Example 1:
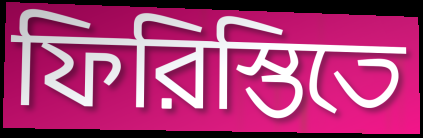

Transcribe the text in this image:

ফিরিস্তিতে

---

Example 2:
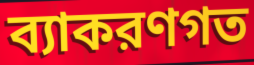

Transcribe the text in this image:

ব্যাকরণগত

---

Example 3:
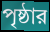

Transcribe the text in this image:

পৃষ্ঠার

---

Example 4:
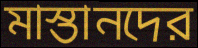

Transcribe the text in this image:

মাস্তানদের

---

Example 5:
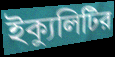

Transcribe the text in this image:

ইক্যুলিটির